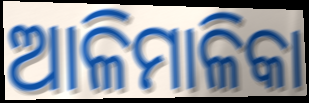
ଆଳିମାଳିକା